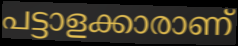
പട്ടാളക്കാരാണ്